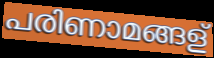
പരിണാമങ്ങള്